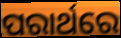
ପରାର୍ଥରେ